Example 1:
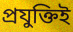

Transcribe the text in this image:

প্রযুক্তিই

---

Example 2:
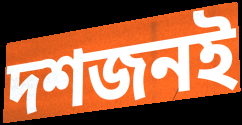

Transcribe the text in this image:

দশজনই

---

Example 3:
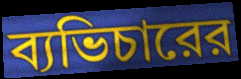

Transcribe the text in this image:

ব্যভিচারের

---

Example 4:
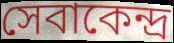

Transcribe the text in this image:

সেবাকেন্দ্র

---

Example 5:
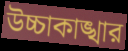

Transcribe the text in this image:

উচ্চাকাঙ্খার